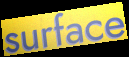
surface